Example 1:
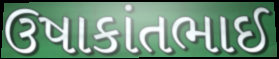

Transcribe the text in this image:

ઉષાકાંતભાઈ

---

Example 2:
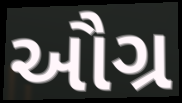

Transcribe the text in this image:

ઔગ્ર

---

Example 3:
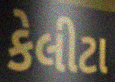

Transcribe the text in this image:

કેલીટા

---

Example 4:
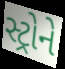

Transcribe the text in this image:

સ્ટ્રોને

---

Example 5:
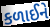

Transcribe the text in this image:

કળાઈને